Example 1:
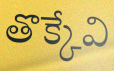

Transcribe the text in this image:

తొక్కేవి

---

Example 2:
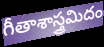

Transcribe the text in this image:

గీతాశాస్త్రమిదం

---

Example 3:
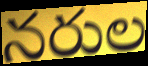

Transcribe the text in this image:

నరుల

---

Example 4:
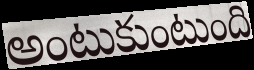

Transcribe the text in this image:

అంటుకుంటుంది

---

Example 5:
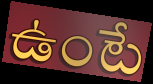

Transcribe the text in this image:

ఉంటే